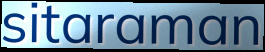
sitaraman